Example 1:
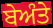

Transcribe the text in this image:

ਬੇਅੰਤੇ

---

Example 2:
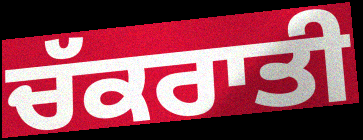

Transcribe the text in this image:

ਚੱਕਰਾਤੀ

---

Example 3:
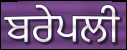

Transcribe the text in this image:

ਬਰੇਪਲੀ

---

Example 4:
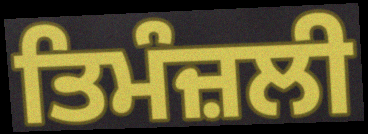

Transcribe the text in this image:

ਤਿਮੰਜ਼ਲੀ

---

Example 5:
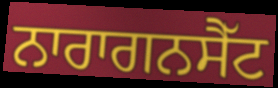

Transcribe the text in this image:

ਨਾਰਾਗਨਸੈੱਟ